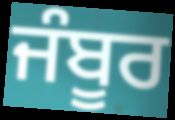
ਜੰਬੂਰ